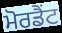
ਮੋਰਡੈਂਟ